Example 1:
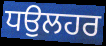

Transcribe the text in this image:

ਧਉਲਹਰ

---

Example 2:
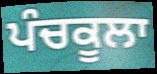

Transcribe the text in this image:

ਪੰਚਕੂਲਾ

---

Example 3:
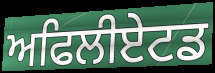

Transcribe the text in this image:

ਅਫਿਲੀਏਟਡ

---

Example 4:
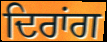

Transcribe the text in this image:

ਦਿਰਾਂਗ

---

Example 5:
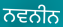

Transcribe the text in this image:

ਨਵਨੀਨ